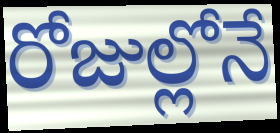
రోజుల్లోనే